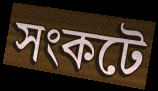
সংকটে